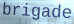
brigade